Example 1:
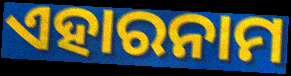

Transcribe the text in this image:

ଏହାରନାମ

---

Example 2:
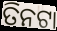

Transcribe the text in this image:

ତିନଟା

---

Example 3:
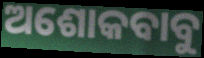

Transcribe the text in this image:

ଅଶୋକବାବୁ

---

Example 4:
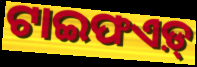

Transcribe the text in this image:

ଟାଇଫଏଡ଼୍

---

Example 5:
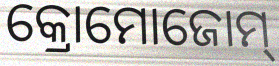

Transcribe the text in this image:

କ୍ରୋମୋଜୋମ୍